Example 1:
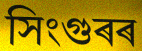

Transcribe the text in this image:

সিংগুৰৰ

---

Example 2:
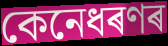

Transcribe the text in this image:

কেনেধৰণৰ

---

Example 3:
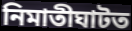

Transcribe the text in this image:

নিমাতীঘাটত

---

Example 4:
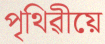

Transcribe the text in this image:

পৃথিৱীয়ে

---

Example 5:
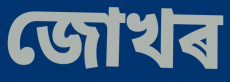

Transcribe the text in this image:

জোখৰ